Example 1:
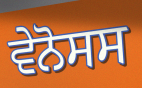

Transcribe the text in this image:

ਵੇਨੋਸਸ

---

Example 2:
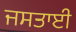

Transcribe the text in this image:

ਜਸਤਾਈ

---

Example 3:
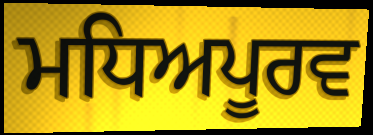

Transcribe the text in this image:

ਮਧਿਅਪੂਰਵ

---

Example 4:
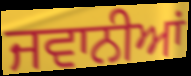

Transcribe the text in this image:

ਜਵਾਨੀਆਂ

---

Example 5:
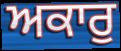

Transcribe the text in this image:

ਅਕਾਰੁ